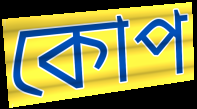
কোপ